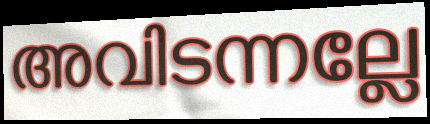
അവിടന്നല്ലേ